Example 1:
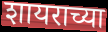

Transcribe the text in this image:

शायराच्या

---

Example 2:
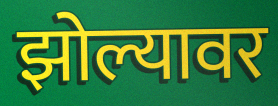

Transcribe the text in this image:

झोल्यावर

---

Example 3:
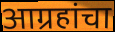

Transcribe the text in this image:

आग्रहांचा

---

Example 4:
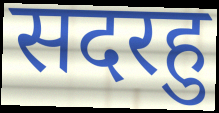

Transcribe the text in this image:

सदरहु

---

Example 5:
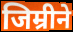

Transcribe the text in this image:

जिम्रीने